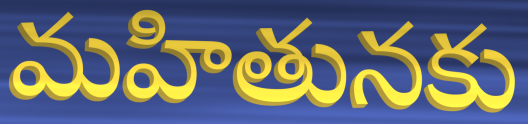
మహితునకు